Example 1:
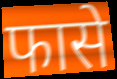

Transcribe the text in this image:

फासे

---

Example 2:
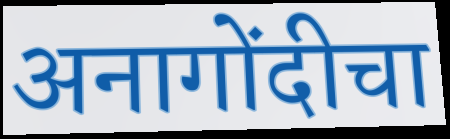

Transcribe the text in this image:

अनागोंदीचा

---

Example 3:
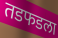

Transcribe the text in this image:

तडफडला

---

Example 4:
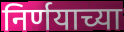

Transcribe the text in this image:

निर्णयाच्या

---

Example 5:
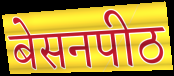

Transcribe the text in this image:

बेसनपीठ